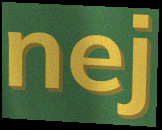
nej